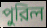
পুরিল